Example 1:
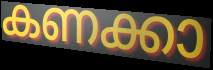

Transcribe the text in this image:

കണക്കാ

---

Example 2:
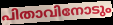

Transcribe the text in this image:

പിതാവിനോടും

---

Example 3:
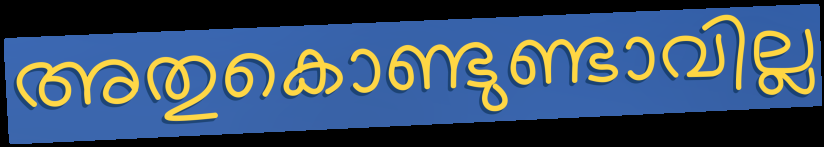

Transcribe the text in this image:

അതുകൊണ്ടുണ്ടാവില്ല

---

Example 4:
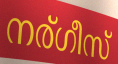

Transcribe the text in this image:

നര്ഗീസ്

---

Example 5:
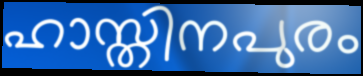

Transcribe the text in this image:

ഹാസ്തിനപുരം